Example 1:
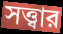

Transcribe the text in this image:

সত্ত্বার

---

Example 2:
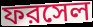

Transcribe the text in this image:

ফরসেল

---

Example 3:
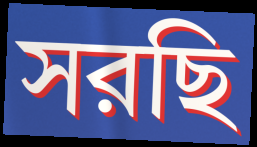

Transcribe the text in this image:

সরছি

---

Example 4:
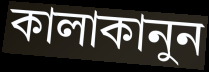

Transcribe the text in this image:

কালাকানুন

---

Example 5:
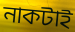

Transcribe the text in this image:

নাকটাই